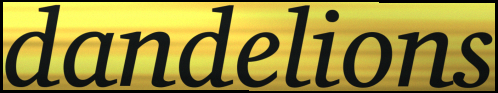
dandelions